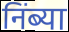
निंब्या